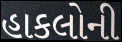
હાકલોની